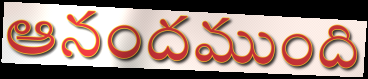
ఆనందముంది